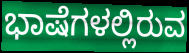
ಭಾಷೆಗಳಲ್ಲಿರುವ